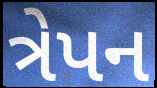
ત્રેપન